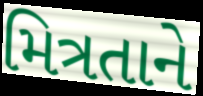
મિત્રતાને